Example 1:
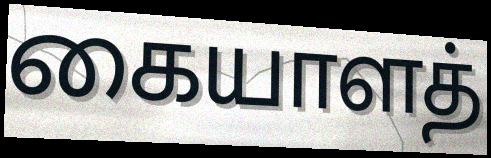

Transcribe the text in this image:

கையாளத்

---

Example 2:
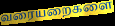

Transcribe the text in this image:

வரையறைகளை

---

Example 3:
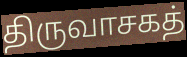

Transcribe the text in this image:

திருவாசகத்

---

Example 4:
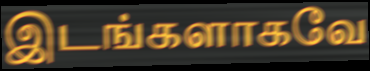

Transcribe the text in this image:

இடங்களாகவே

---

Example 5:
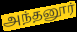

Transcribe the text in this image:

அந்தனூர்